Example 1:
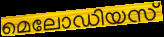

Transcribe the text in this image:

മെലോഡിയസ്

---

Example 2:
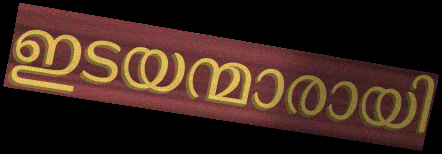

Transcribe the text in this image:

ഇടയന്മാരായി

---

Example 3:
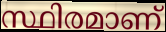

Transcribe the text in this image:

സ്ഥിരമാണ്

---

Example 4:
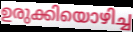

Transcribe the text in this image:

ഉരുക്കിയൊഴിച്ച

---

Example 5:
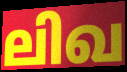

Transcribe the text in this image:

ലിഖ